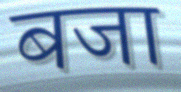
बजा